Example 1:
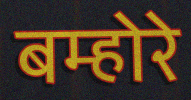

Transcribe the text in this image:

बम्होरे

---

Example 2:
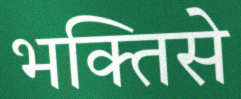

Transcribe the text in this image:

भक्तिसे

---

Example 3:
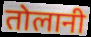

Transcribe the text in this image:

तोलानी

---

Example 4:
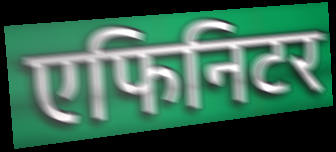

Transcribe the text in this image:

एफिनिटर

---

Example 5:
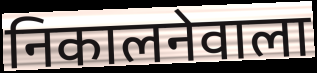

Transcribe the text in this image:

निकालनेवाला